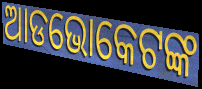
ଆଡଭୋକେଟଙ୍କ